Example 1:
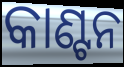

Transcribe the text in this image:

କାଣ୍ଟନ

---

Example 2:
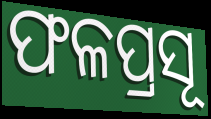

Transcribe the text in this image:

ଫଳପ୍ରସୂ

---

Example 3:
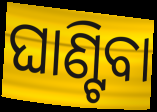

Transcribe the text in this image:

ଘାଣ୍ଟିବା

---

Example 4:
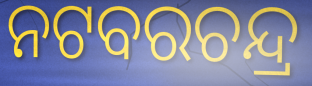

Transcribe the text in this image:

ନଟବରଚନ୍ଦ୍ର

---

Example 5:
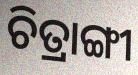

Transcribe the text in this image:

ଚିତ୍ରାଙ୍ଗୀ